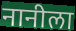
नानीला